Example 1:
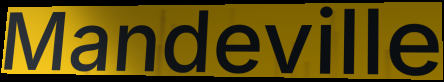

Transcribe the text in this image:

Mandeville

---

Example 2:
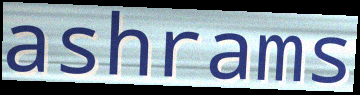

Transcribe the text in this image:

ashrams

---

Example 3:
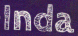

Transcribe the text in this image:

Inda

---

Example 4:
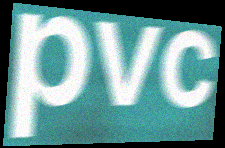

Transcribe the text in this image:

pvc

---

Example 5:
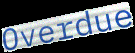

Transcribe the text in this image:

Overdue